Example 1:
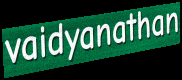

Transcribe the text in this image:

vaidyanathan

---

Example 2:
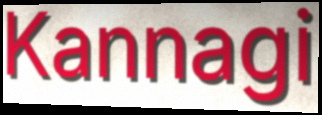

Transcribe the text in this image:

Kannagi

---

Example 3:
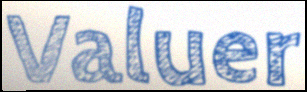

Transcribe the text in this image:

Valuer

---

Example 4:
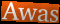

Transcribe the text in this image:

Awas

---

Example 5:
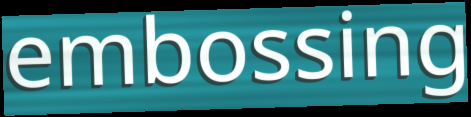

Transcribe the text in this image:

embossing